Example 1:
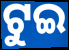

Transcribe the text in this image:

ଟୁଇ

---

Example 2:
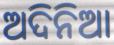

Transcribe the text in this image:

ଅଦିନିଆ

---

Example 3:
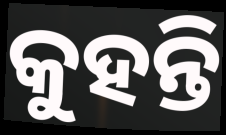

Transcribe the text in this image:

କୁହନ୍ତି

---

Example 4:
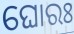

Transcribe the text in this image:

ଘୋରଃ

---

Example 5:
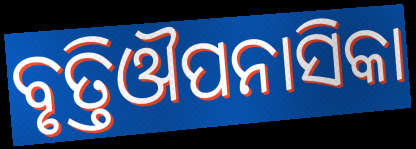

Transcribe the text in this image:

ବୃତ୍ତିଔପନାସିକା